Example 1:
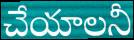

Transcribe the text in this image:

చేయాలనీ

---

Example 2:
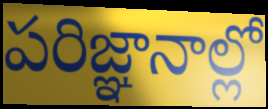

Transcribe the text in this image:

పరిజ్ఞానాల్లో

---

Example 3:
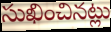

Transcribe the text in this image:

సుఖించినట్లు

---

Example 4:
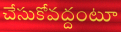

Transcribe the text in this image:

చేసుకోవద్దంటూ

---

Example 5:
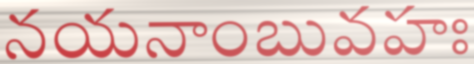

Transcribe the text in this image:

నయనాంబువహః